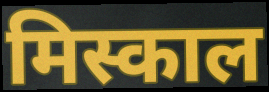
मिस्काल